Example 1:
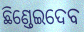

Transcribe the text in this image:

ଛିଣ୍ଡେଇଦେବ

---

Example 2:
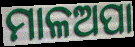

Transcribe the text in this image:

ମାଳଅପା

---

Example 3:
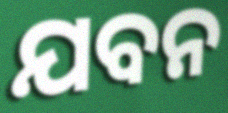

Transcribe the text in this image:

ଯବନ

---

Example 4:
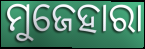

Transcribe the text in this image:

ମୁଜେହାରା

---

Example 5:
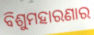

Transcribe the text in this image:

ବିଶୁମହାରଣାର